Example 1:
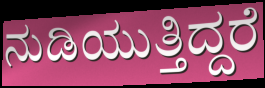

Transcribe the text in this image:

ನುಡಿಯುತ್ತಿದ್ದರೆ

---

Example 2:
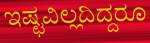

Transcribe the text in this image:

ಇಷ್ಟವಿಲ್ಲದಿದ್ದರೂ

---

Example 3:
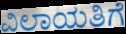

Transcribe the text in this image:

ವಿಲಾಯತಿಗೆ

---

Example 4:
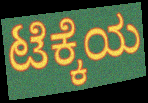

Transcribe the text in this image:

ಟೆಕ್ಕೆಯ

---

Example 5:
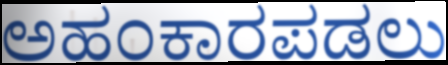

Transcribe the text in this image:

ಅಹಂಕಾರಪಡಲು